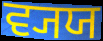
ਵ੍ਯਯ